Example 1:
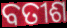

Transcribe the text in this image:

ବତୀଶ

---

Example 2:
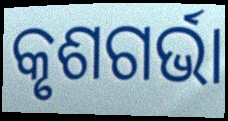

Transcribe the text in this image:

କୃଶଗର୍ଭା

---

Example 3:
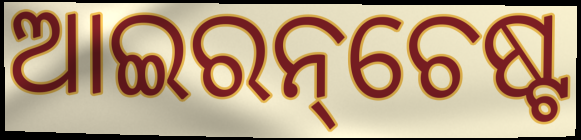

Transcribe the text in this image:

ଆଇରନ୍‌ଚେଷ୍ଟ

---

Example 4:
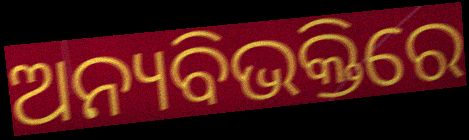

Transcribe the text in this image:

ଅନ୍ୟବିଭକ୍ତିରେ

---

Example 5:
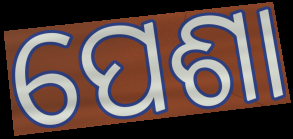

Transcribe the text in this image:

ପେଶା